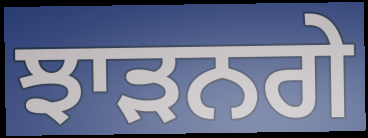
ਝਾੜਨਗੇ